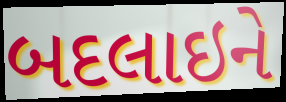
બદલાઇને